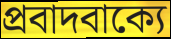
প্রবাদবাক্যে